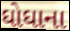
ઘોઘાના